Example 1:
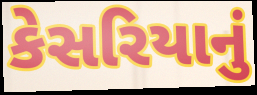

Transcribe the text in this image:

કેસરિયાનું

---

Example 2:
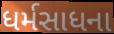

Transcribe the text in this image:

ધર્મસાધના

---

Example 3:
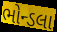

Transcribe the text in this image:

ભોન્ડલા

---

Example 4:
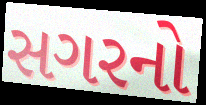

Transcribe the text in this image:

સગરનો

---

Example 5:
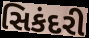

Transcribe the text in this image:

સિકંદરી